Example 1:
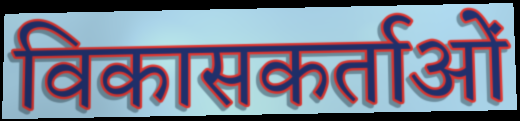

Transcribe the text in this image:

विकासकर्ताओं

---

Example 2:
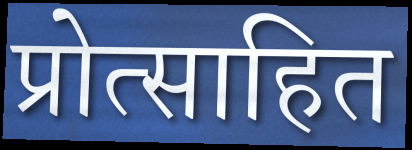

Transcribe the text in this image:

प्रोत्साहित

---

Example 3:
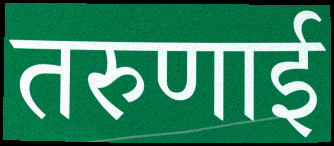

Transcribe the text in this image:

तरुणाई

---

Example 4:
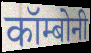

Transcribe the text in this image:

कॉम्बोनी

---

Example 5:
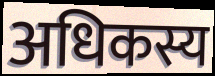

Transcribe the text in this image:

अधिकस्य